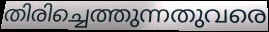
തിരിച്ചെത്തുന്നതുവരെ